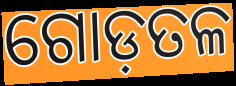
ଗୋଡ଼ତଳ